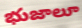
భుజాలూ